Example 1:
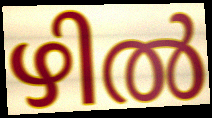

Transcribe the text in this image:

ഴിൽ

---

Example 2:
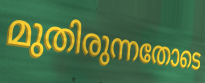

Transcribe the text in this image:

മുതിരുന്നതോടെ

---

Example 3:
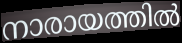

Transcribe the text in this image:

നാരായത്തിൽ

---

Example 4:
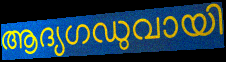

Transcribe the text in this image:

ആദ്യഗഡുവായി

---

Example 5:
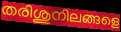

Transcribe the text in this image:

തരിശുനിലങ്ങളെ